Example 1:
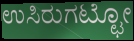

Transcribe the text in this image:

ಉಸಿರುಗಟ್ಟೋ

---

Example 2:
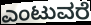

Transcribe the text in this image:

ಎಂಟುವರೆ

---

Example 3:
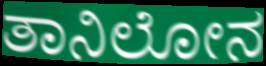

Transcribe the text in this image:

ತಾನಿಲೋನ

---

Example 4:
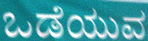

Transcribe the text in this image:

ಒಡೆಯುವ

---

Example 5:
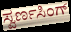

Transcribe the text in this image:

ಸ್ವರ್ಣಸಿಂಗ್